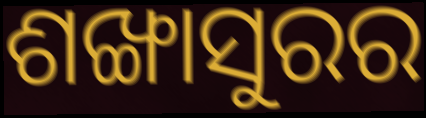
ଶଙ୍ଖାସୁରର